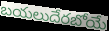
బయలుదేరబోయే